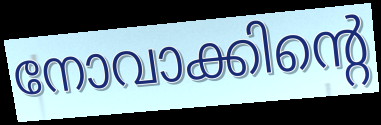
നോവാക്കിന്റെ